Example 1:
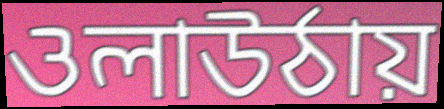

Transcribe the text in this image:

ওলাউঠায়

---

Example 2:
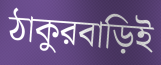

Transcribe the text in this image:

ঠাকুরবাড়িই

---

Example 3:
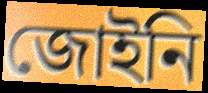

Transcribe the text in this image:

জোইনি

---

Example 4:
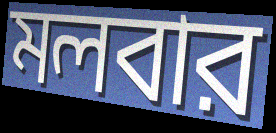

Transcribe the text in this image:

মলবার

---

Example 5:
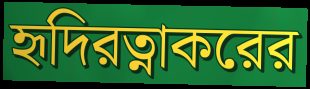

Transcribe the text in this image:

হৃদিরত্নাকরের